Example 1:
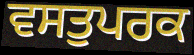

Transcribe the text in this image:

ਵਸਤੁਪਰਕ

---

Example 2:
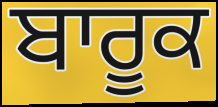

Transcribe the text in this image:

ਬਾਰੂਕ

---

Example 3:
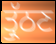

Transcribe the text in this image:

ਤ੍ਰੁੱਠਣ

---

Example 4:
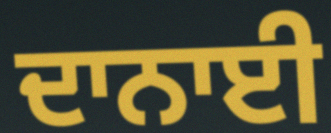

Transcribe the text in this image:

ਦਾਨਾਈ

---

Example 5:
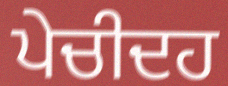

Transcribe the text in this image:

ਪੇਚੀਦਹ